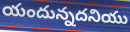
యందున్నదనియు